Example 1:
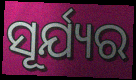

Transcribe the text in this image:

ସୂର୍ଯ୍ୟର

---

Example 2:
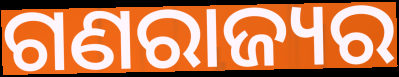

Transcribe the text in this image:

ଗଣରାଜ୍ୟର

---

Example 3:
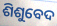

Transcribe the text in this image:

ଶିଶୁବେଦ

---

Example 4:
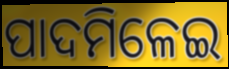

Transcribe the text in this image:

ପାଦମିଳେଇ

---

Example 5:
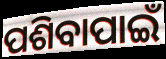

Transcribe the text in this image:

ପଶିବାପାଇଁ